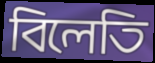
বিলেতি